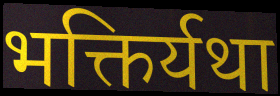
भक्तिर्यथा